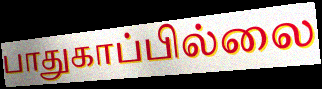
பாதுகாப்பில்லை